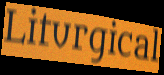
Liturgical